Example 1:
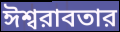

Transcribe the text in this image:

ঈশ্বরাবতার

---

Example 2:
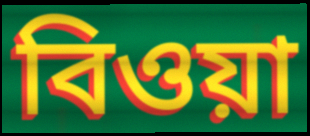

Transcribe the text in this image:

বিওয়া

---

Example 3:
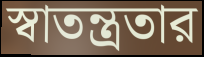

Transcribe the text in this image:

স্বাতন্ত্রতার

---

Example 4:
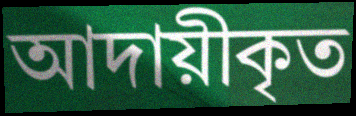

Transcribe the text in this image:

আদায়ীকৃত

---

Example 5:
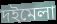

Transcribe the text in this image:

দইমেলা